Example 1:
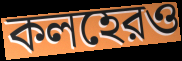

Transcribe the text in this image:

কলহেরও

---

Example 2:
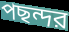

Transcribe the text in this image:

পছন্দর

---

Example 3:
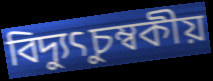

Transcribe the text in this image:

বিদ্যুৎচুম্বকীয়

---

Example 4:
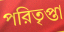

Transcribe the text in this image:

পরিতৃপ্তা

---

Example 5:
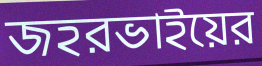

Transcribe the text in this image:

জহরভাইয়ের